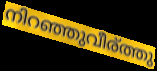
നിറഞ്ഞുവീര്ത്തു